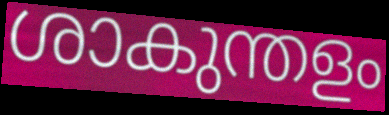
ശാകുന്തളം